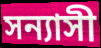
সন্যাসী